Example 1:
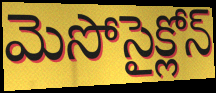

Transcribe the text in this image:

మెసోసైక్లోన్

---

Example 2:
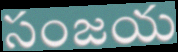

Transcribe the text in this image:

సంజయ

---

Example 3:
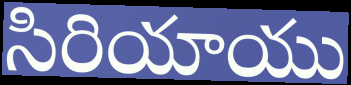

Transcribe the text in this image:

సిరియాయు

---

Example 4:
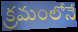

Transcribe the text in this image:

క్రమంలోనే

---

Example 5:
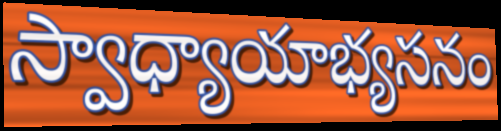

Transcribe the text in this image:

స్వాధ్యాయాభ్యసనం